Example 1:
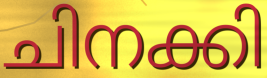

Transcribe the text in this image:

ചിനക്കി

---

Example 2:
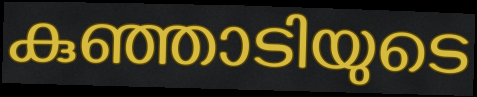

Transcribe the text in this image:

കുഞ്ഞാടിയുടെ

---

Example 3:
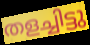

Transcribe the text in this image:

തളച്ചിട്ടു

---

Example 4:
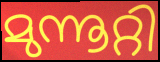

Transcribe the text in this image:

മുന്നൂറ്റി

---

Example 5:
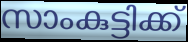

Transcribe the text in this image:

സാംകുട്ടിക്ക്